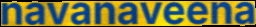
navanaveena